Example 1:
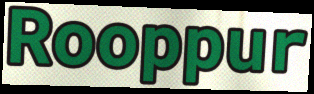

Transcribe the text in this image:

Rooppur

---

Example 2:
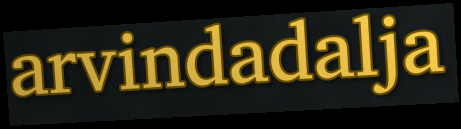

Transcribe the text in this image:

arvindadalja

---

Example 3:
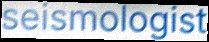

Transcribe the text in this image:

seismologist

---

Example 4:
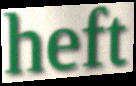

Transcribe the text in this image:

heft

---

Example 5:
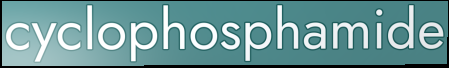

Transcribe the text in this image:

cyclophosphamide